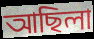
আছিলা